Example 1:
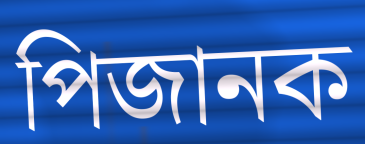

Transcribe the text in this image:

পিজানক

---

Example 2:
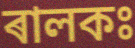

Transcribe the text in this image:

ৰালকঃ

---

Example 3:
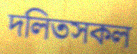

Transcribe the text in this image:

দলিতসকল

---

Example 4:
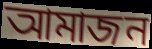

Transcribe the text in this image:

আমাজন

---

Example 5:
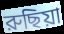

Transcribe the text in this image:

ৰুছিয়া